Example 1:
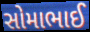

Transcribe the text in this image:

સોમાભાઈ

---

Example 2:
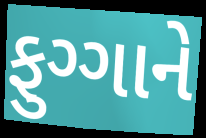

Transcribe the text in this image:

ફુગ્ગાને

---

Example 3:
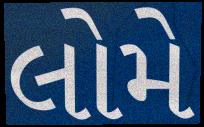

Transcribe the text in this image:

લોમે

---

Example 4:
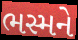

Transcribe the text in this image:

ભસ્મને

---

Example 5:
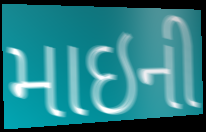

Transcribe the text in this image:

માઇની